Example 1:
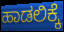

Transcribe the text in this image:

ಹಾಡಲಿಕ್ಕೆ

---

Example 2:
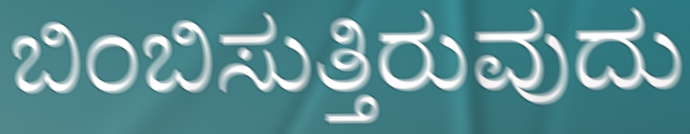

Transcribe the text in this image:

ಬಿಂಬಿಸುತ್ತಿರುವುದು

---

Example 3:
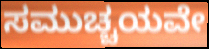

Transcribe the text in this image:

ಸಮುಚ್ಚಯವೇ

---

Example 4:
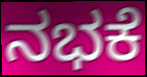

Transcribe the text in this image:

ನಭಕೆ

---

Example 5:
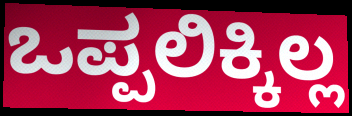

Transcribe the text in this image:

ಒಪ್ಪಲಿಕ್ಕಿಲ್ಲ